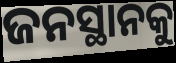
ଜନସ୍ଥାନକୁ